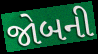
જોબની